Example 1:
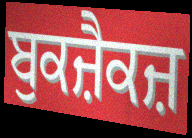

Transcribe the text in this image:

ਬੁਕਜ਼ੈਕਜ਼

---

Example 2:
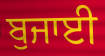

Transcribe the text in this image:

ਬੁਜਾਈ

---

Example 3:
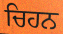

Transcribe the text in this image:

ਚਿਹਨ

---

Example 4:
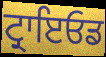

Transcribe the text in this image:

ਟ੍ਰਾਇਓਡ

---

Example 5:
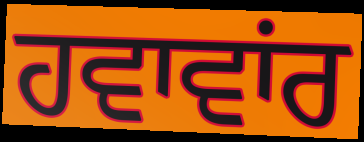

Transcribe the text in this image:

ਹਵਾਵਾਂਰ